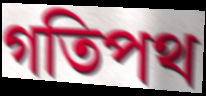
গতিপথ